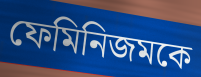
ফেমিনিজমকে